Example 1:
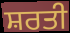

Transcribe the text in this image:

ਸ਼ਰਤੀ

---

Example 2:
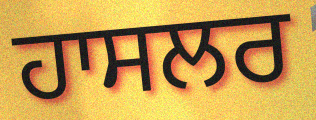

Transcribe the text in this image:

ਹਾਸਲਰ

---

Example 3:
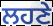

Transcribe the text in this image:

ਲਹਣੇ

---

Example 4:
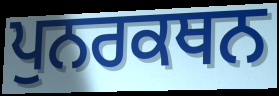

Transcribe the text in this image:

ਪੁਨਰਕਥਨ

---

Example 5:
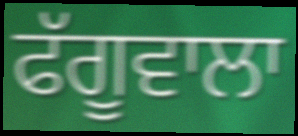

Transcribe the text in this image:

ਫੱਗੂਵਾਲਾ